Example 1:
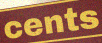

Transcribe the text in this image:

cents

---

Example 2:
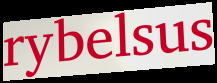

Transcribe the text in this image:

rybelsus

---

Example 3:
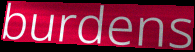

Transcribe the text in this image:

burdens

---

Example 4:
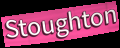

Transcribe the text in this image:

Stoughton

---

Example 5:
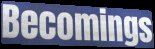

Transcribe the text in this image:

Becomings